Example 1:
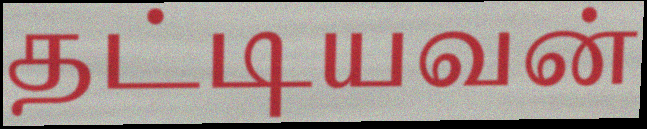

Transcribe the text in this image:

தட்டியவன்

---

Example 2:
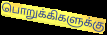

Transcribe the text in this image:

பொறுக்கிகளுக்கு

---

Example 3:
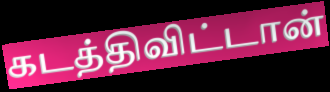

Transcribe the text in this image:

கடத்திவிட்டான்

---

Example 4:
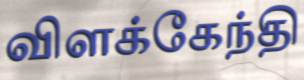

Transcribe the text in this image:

விளக்கேந்தி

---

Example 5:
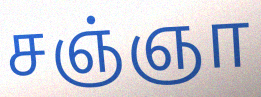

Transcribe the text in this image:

சஞ்ஞா